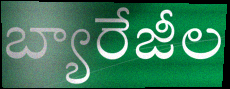
బ్యారేజీల